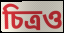
চিত্ৰও